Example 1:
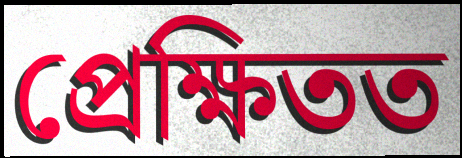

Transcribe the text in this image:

প্ৰেক্ষিতত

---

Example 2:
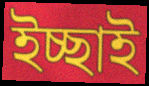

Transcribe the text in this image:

ইচ্ছাই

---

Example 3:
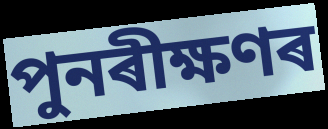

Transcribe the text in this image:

পুনৰীক্ষণৰ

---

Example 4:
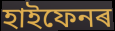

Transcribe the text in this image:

হাইফেনৰ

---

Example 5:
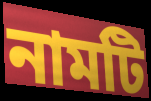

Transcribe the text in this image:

নামটি